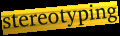
stereotyping